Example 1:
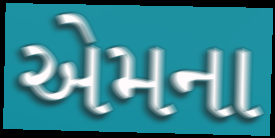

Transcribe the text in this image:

એમના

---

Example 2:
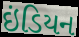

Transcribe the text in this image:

ઇંડિયન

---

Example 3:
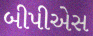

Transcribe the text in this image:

બીપીએસ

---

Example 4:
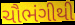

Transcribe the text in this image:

ચૌભંગીથી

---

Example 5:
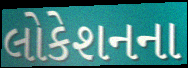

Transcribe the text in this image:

લોકેશનના